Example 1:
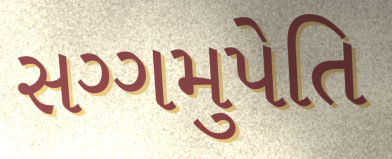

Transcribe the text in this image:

સગ્ગમુપેતિ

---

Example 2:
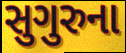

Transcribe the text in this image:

સુગુરુના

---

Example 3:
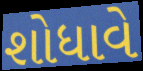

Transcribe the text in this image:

શોધાવે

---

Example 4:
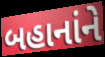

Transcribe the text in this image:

બહાનાંને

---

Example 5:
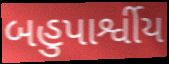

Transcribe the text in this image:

બહુપાર્શ્વીય